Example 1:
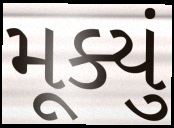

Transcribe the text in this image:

મૂક્યું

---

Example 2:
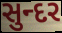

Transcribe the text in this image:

સુન્દર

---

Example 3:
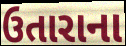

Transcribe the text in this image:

ઉતારાના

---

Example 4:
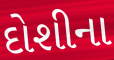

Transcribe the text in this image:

દોશીના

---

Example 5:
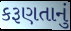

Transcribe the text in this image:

કરૂણતાનું